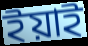
ইয়াই